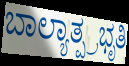
ಬಾಲ್ಯಾತ್ಪ್ರಭೃತಿ